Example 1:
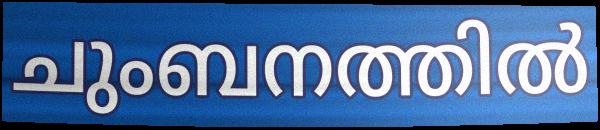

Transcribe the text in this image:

ചുംബനത്തിൽ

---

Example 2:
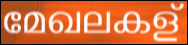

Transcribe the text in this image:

മേഖലകള്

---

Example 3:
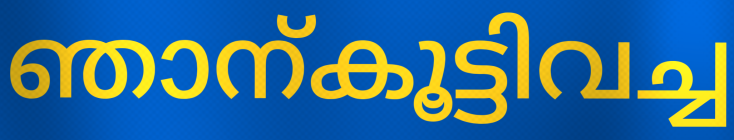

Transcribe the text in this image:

ഞാന്കൂട്ടിവച്ച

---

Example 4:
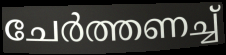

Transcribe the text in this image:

ചേർത്തണച്ച്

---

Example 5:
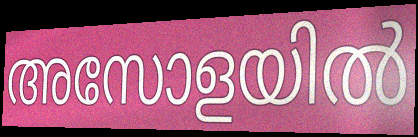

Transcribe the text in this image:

അസോളയിൽ